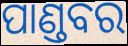
ପାଣ୍ଡବର